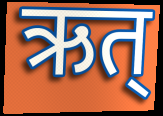
ऋत्